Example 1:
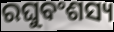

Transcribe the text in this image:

ରଘୁବଂଶସ୍ୟ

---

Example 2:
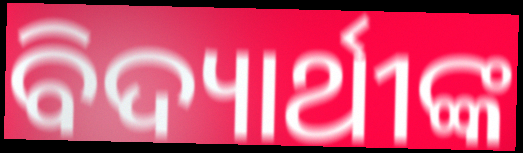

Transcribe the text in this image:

ବିଦ୍ୟାର୍ଥୀଙ୍କ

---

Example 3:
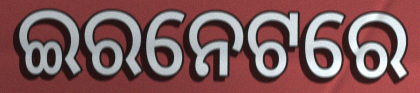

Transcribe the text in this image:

ଇରନେଟରେ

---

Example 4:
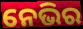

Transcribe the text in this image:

ନେଭିର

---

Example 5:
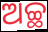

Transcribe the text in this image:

ଅଚ୍ଛ